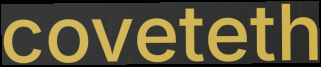
coveteth